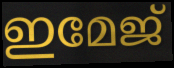
ഇമേജ്